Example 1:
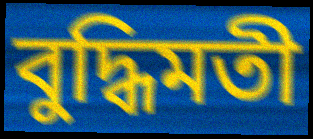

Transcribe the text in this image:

বুদ্ধিমতী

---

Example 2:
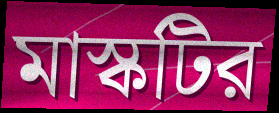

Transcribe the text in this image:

মাস্কটির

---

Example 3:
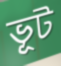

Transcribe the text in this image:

ভূট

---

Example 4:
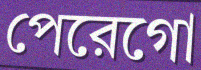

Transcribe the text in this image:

পেরেগো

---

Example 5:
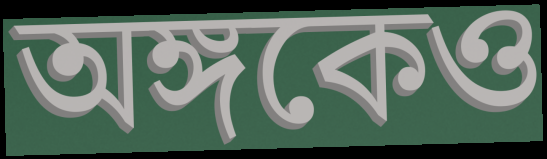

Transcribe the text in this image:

অঙ্গকেও